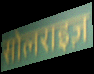
सोलराइज़